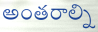
అంతరాల్ని